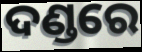
ଦଣ୍ଡରେ